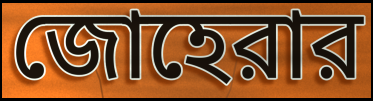
জোহেরার